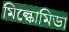
মিল্কোমিডা